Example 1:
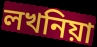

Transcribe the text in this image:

লখনিয়া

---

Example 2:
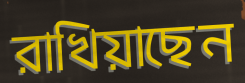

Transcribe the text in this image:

রাখিয়াছেন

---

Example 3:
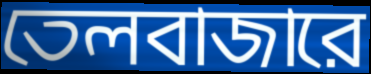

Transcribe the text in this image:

তেলবাজারে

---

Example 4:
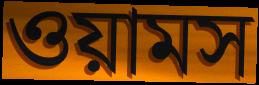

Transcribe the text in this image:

ওয়ামস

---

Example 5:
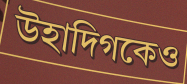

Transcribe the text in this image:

উহাদিগকেও